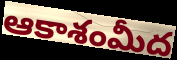
ఆకాశంమీద